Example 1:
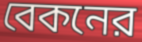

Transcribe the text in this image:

বেকনের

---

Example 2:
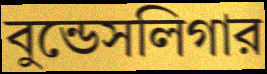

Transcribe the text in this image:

বুন্ডেসলিগার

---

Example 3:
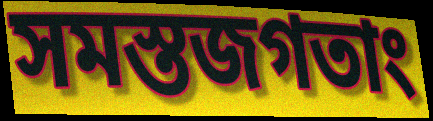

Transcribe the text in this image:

সমস্তজগতাং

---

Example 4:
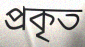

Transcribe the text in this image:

প্রকৃত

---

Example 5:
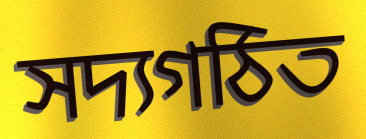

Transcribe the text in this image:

সদ্যগঠিত